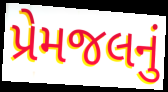
પ્રેમજલનું